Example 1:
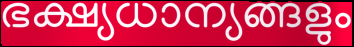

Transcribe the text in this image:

ഭക്ഷ്യധാന്യങ്ങളും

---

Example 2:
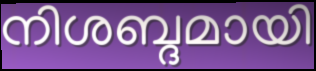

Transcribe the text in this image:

നിശബ്ദമായി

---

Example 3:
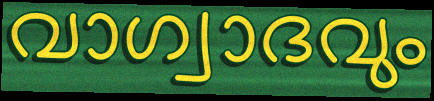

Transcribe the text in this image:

വാഗ്വാദവും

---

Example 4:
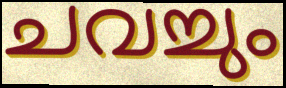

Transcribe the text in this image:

ചവച്ചും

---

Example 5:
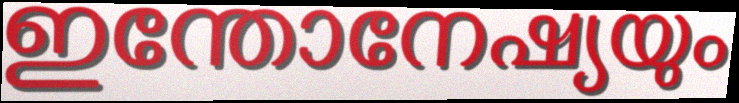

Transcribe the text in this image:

ഇന്തോനേഷ്യയും